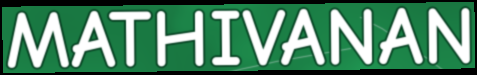
MATHIVANAN